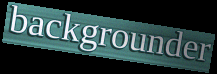
backgrounder